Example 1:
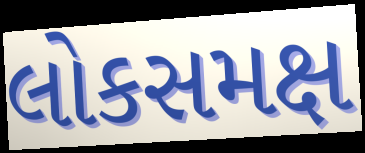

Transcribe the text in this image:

લોકસમક્ષ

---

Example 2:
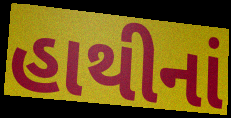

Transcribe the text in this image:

હાથીનાં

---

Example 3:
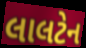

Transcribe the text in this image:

લાલટેન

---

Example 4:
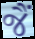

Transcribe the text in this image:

જૈં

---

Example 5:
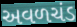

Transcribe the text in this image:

અવળચંડ